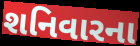
શનિવારના